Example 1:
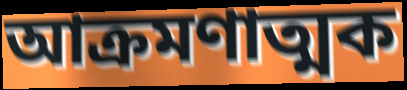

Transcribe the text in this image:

আক্রমণাত্মক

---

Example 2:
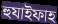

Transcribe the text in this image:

হুযাইফাহ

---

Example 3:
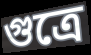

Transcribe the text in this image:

গুত্রে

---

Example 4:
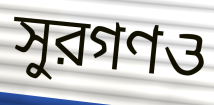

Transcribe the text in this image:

সুরগণও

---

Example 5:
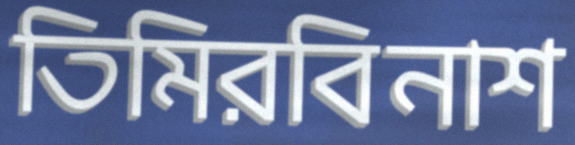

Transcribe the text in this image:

তিমিরবিনাশ